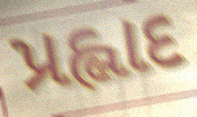
પ્રહ્લાદ